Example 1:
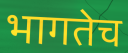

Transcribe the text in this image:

भागतेच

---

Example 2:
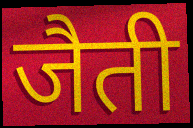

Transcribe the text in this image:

जैती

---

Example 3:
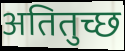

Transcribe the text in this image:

अतितुच्छ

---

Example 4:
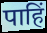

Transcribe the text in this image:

पाहिं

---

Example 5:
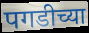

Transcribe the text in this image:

पगडीच्या